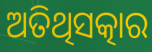
ଅତିଥିସତ୍କାର